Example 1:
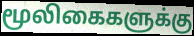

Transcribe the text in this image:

மூலிகைகளுக்கு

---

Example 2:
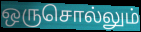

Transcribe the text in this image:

ஒருசொல்லும்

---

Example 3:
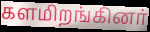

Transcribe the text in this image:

களமிறங்கினர்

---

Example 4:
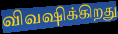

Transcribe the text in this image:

விவஷிக்கிறது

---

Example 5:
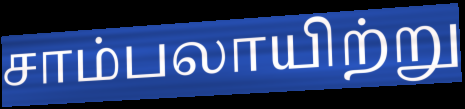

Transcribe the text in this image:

சாம்பலாயிற்று